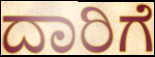
ದಾರಿಗೆ